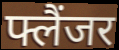
फ्लैंजर